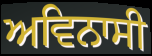
ਅਵਿਨਾਸੀ